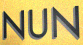
NUN